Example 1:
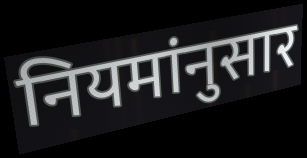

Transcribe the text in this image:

नियमांनुसार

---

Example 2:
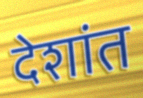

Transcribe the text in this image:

देशांत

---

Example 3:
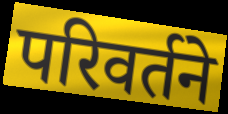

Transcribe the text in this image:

परिवर्तने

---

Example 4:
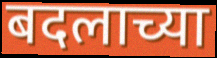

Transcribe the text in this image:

बदलाच्या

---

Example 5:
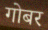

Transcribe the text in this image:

गोबर